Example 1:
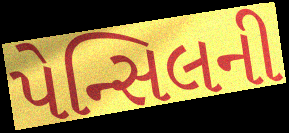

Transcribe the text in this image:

પેન્સિલની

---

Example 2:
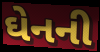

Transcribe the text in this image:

ઘેનની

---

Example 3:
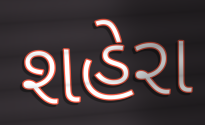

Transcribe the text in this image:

શહેરા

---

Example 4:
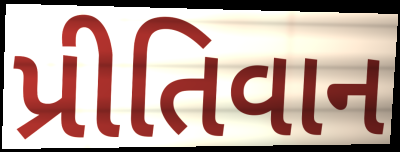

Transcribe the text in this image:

પ્રીતિવાન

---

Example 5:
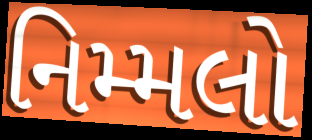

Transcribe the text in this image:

નિમ્મલો